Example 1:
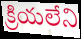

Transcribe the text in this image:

క్రియలేని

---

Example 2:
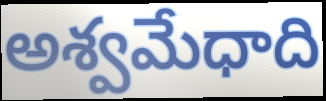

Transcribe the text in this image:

అశ్వమేధాది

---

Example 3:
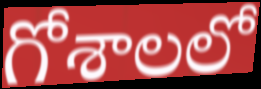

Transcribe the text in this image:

గోశాలలో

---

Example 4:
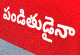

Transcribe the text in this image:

పండితుడైనా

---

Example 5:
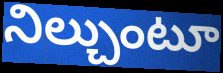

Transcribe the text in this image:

నిల్చుంటూ